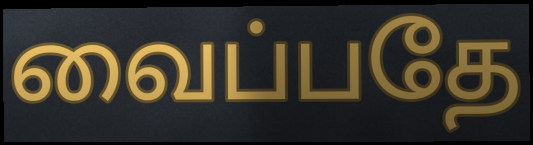
வைப்பதே